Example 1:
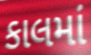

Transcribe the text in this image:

કાલમાં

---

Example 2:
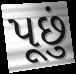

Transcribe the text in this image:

પૂછું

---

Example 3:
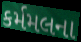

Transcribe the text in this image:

કર્મમલના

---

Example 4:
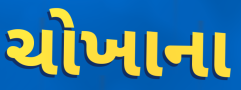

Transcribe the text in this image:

ચોખાના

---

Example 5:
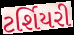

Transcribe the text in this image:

ટર્શિયરી